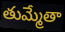
తుమ్మేతా